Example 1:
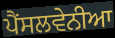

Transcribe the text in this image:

ਪੈਂਸਲਵੇਨੀਆ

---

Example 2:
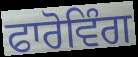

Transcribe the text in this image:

ਫਾਰੋਵਿੰਗ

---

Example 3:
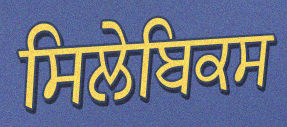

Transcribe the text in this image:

ਸਿਲੇਬਿਕਸ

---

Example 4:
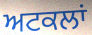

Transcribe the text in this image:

ਅਟਕਲਾਂ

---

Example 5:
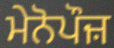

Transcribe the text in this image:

ਮੇਨੋਪੌਜ਼